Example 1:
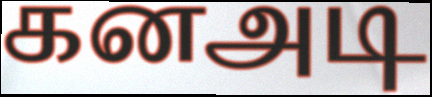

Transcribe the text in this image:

கனஅடி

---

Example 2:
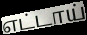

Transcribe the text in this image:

எட்டாய்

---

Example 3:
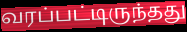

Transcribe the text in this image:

வரப்பட்டிருந்தது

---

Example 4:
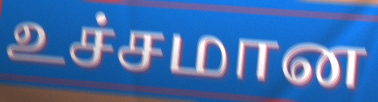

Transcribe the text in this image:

உச்சமான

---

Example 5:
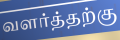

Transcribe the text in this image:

வளர்த்தற்கு